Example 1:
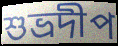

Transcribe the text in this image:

শুভ্রদীপ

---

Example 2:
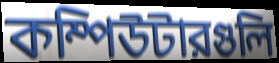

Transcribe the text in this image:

কম্পিউটারগুলি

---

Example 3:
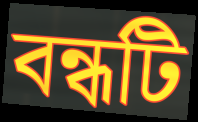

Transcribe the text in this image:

বন্ধটি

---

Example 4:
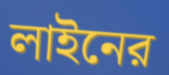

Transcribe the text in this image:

লাইনের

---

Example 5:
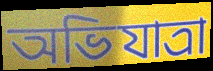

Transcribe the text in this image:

অভিযাত্রা